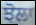
ਝੋਲਾ